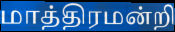
மாத்திரமன்றி